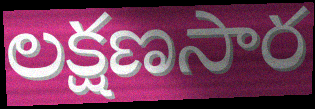
లక్షణసార